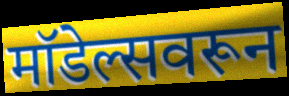
मॉडेल्सवरून